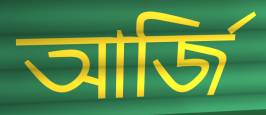
আৰ্জি